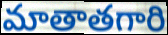
మాతాతగారి